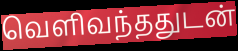
வெளிவந்ததுடன்